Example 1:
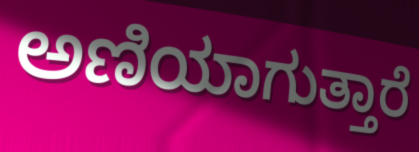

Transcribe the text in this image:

ಅಣಿಯಾಗುತ್ತಾರೆ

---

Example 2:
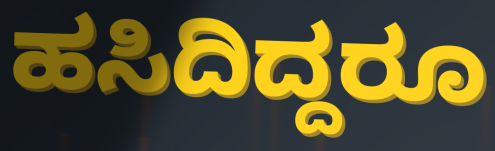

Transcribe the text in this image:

ಹಸಿದಿದ್ದರೂ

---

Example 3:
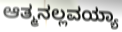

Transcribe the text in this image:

ಆತ್ಮನಲ್ಲವಯ್ಯಾ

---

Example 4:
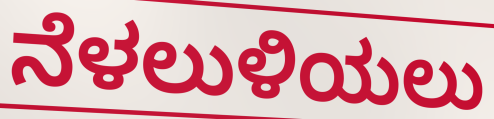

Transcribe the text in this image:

ನೆಳಲುಳಿಯಲು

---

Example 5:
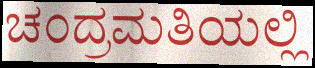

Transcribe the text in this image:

ಚಂದ್ರಮತಿಯಲ್ಲಿ